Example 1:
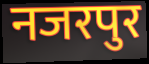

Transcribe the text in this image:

नजरपुर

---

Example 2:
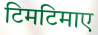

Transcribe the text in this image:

टिमटिमाए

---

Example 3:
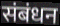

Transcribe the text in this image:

संबंधन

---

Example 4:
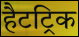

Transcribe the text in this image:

हैटट्रिक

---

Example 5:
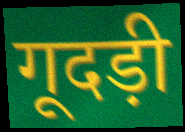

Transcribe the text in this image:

गूदड़ी